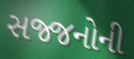
સજ્જનોની